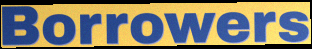
Borrowers